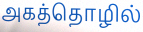
அகத்தொழில்